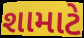
શામાટે